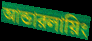
আন্ডারলায়িং